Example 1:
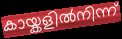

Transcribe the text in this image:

കായ്കളിൽനിന്ന്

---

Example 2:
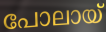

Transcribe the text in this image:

പോലായ്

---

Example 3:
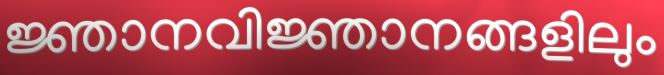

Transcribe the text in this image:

ജ്ഞാനവിജ്ഞാനങ്ങളിലും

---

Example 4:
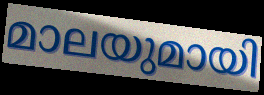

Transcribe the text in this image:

മാലയുമായി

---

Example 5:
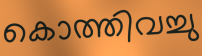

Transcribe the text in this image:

കൊത്തിവച്ചു